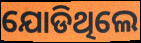
ଯୋଡିଥିଲେ